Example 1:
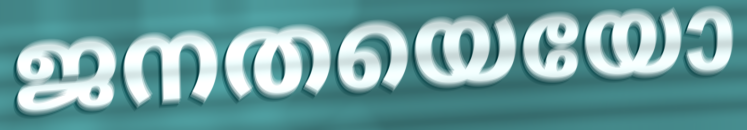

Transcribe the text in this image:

ജനതയെയോ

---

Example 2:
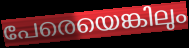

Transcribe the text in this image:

പേരെയെങ്കിലും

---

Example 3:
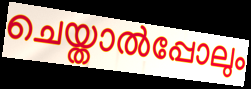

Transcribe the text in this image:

ചെയ്താൽപ്പോലും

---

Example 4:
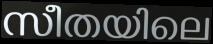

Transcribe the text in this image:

സീതയിലെ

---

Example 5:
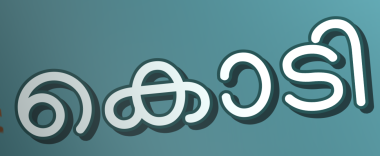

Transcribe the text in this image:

കൊടി